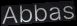
Abbas